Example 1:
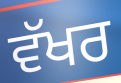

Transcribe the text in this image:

ਵੱਖਰ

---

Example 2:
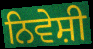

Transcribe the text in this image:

ਨਿਵੇਸ਼ੀ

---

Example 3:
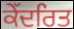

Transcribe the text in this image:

ਕੇੱਦਰਿਤ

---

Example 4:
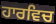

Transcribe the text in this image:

ਹਾਰਵਿਚ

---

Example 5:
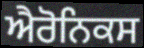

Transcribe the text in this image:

ਐਰੋਨਿਕਸ